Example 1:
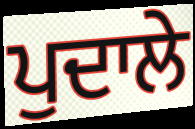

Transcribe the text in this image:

ਪੁਦਾਲੇ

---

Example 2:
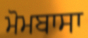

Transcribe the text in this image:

ਮੋਮਬਾਸਾ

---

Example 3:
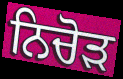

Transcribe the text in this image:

ਨਿਚੋਡ਼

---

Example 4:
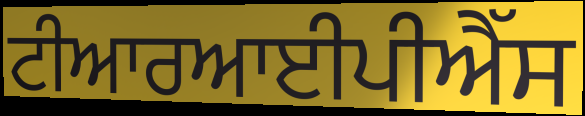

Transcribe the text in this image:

ਟੀਆਰਆਈਪੀਐੱਸ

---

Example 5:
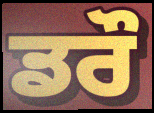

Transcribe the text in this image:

ਡਰੌ